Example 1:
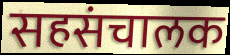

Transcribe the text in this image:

सहसंचालक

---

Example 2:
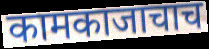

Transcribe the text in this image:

कामकाजाचाच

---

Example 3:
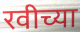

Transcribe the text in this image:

रवीच्या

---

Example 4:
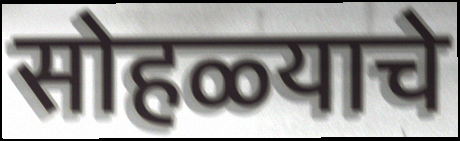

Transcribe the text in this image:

सोहळ्याचे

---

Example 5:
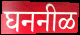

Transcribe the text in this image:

घननीळ